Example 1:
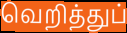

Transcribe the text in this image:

வெறித்துப்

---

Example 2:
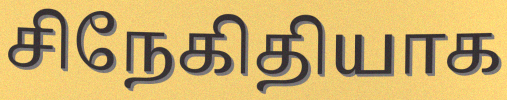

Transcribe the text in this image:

சிநேகிதியாக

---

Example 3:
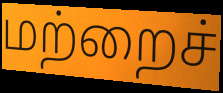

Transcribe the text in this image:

மற்றைச்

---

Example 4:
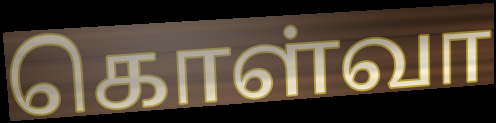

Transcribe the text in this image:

கொள்வா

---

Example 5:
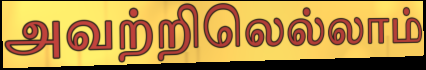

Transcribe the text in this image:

அவற்றிலெல்லாம்